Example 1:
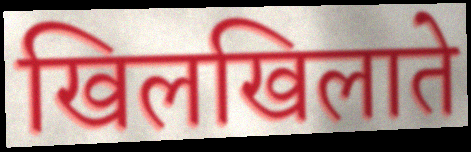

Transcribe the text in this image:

खिलखिलाते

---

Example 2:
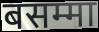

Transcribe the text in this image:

बसम्मा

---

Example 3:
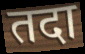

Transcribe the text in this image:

तदा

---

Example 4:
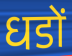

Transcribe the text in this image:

धडों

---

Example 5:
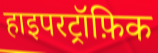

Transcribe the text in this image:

हाइपरट्रॉफ़िक